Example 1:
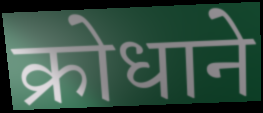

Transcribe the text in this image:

क्रोधाने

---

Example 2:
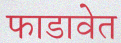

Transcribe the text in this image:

फाडावेत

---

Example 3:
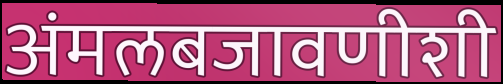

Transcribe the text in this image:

अंमलबजावणीशी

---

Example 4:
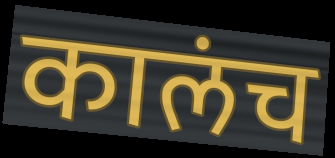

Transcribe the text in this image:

कालंच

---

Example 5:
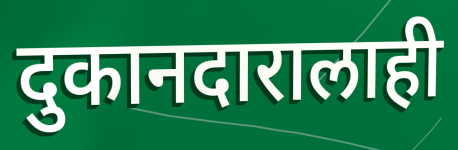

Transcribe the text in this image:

दुकानदारालाही